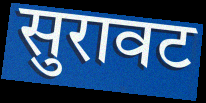
सुरावट